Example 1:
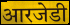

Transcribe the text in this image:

आरजेडी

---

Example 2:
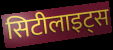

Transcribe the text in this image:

सिटीलाइट्स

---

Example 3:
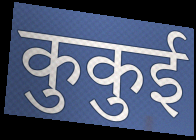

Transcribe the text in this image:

कुकुई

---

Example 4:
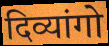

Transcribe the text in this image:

दिव्यांगो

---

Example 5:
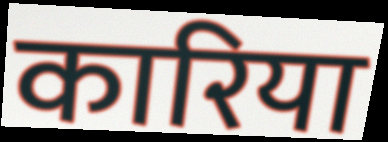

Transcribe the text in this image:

कारिया